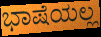
ಭಾಷೆಯಲ್ಲ